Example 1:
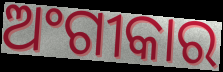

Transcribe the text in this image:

ଅଂଗୀକାର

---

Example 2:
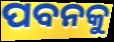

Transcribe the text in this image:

ପବନକୁ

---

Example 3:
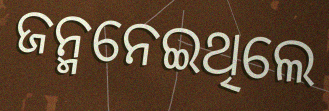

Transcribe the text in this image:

ଜନ୍ମନେଇଥିଲେ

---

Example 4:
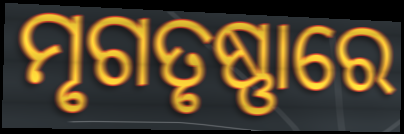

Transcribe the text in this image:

ମୃଗତୃଷ୍ଣାରେ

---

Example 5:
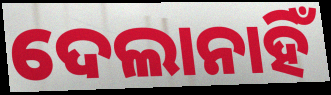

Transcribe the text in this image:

ଦେଲାନାହିଁ